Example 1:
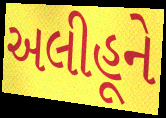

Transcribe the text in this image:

અલીહૂને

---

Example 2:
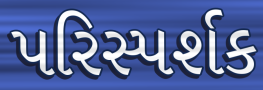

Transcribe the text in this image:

પરિસ્પર્શક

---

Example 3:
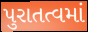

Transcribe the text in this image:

પુરાતત્વમાં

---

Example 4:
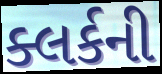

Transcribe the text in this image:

ક્લર્કની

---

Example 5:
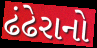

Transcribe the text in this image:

ઢંઢેરાનો